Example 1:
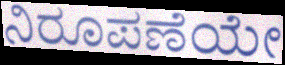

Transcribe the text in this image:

ನಿರೂಪಣೆಯೇ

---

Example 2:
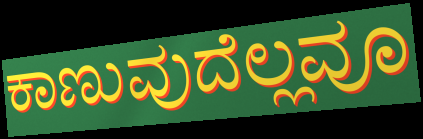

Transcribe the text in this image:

ಕಾಣುವುದೆಲ್ಲವೂ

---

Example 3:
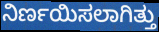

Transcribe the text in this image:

ನಿರ್ಣಯಿಸಲಾಗಿತ್ತು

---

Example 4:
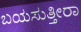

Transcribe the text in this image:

ಬಯಸುತ್ತೀರಾ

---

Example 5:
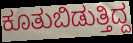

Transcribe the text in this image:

ಕೂತುಬಿಡುತ್ತಿದ್ದ